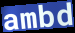
ambd